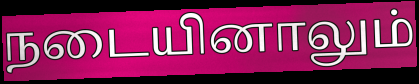
நடையினாலும்